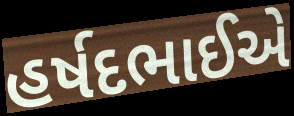
હર્ષદભાઈએ